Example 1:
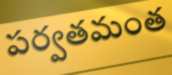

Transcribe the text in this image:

పర్వతమంత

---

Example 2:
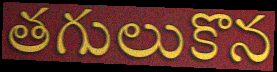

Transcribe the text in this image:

తగులుకొన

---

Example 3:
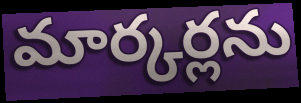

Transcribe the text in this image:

మార్కర్లను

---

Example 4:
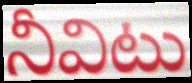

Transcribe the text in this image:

నీవిటు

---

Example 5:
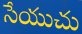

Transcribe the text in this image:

సేయుచు